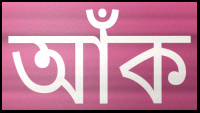
আঁক